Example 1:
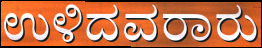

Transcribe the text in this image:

ಉಳಿದವರಾರು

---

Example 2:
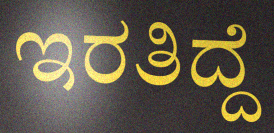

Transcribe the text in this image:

ಇರತಿದ್ದೆ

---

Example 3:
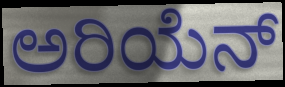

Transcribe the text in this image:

ಅರಿಯೆನ್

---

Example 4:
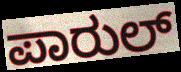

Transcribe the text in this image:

ಪಾರುಲ್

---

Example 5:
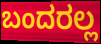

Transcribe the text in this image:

ಬಂದರಲ್ಲ